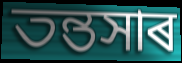
তন্তসাৰ